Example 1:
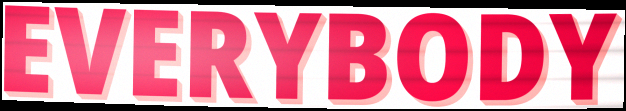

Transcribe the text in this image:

EVERYBODY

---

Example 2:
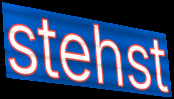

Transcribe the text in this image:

stehst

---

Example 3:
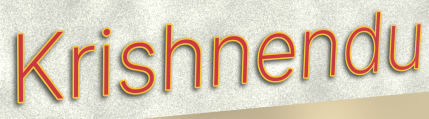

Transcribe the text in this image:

Krishnendu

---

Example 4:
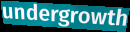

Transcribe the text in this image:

undergrowth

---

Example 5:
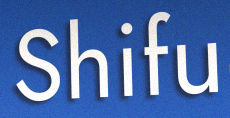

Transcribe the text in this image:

Shifu